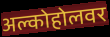
अल्कोहोलवर